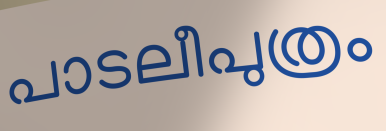
പാടലീപുത്രം